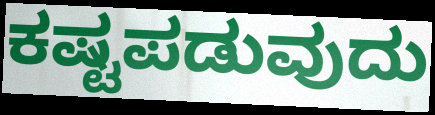
ಕಷ್ಟಪಡುವುದು